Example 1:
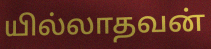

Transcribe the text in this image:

யில்லாதவன்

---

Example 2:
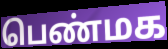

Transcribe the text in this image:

பெண்மக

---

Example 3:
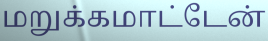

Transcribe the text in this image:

மறுக்கமாட்டேன்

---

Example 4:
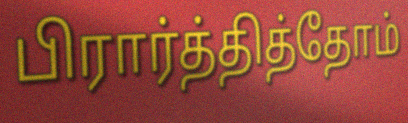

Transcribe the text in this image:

பிரார்த்தித்தோம்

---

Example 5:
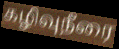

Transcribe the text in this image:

கழிவுநீரை